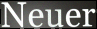
Neuer